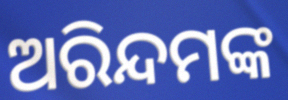
ଅରିନ୍ଦମଙ୍କ